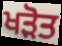
ਖੜੋਤ